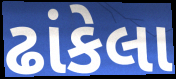
ઢાંકેલા